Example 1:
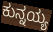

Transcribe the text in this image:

ಕುನ್ನಯ್ಯ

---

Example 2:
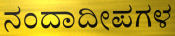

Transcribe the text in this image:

ನಂದಾದೀಪಗಳ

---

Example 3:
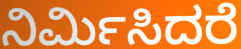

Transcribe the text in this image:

ನಿರ್ಮಿಸಿದರೆ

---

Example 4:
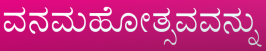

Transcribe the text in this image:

ವನಮಹೋತ್ಸವವನ್ನು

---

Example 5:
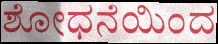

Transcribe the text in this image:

ಶೋಧನೆಯಿಂದ